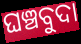
ଘଞ୍ଚବୁଦା